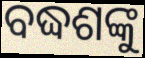
ବଦ୍ଧଶଙ୍କୁ